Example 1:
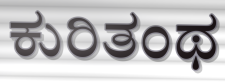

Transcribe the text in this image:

ಕುರಿತಂಥ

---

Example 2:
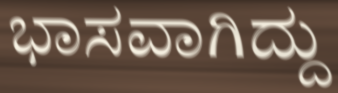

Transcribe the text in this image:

ಭಾಸವಾಗಿದ್ದು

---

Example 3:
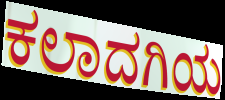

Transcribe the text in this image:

ಕಲಾದಗಿಯ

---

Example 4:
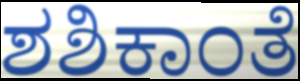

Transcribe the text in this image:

ಶಶಿಕಾಂತೆ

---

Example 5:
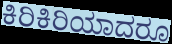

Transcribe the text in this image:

ಕಿರಿಕಿರಿಯಾದರೂ